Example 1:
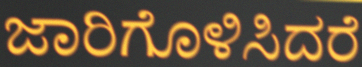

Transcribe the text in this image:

ಜಾರಿಗೊಳಿಸಿದರೆ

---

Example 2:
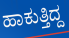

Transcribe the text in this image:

ಹಾಕುತ್ತಿದ್ದ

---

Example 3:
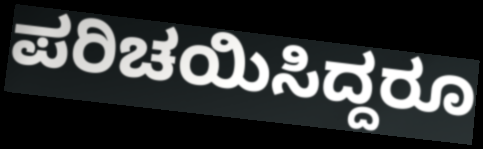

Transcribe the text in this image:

ಪರಿಚಯಿಸಿದ್ದರೂ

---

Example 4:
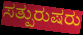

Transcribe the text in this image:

ಸತ್ಪುರುಷರು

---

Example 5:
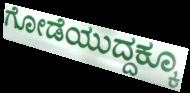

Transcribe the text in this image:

ಗೋಡೆಯುದ್ದಕ್ಕೂ